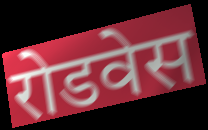
रोडवेस